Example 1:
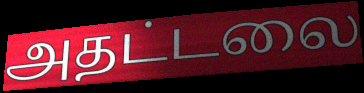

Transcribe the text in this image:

அதட்டலை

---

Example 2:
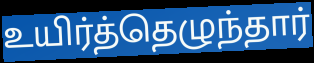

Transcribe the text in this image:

உயிர்த்தெழுந்தார்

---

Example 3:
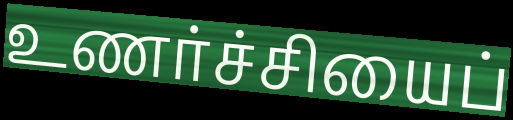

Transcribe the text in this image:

உணர்ச்சியைப்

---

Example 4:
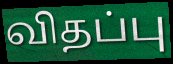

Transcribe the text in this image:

விதப்பு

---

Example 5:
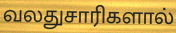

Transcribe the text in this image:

வலதுசாரிகளால்